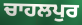
ਚਾਹਲਪੁਰ